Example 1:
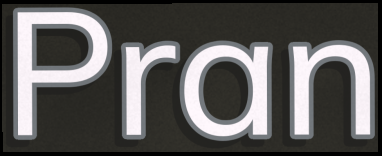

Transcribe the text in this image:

Pran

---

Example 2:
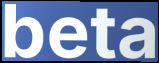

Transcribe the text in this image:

beta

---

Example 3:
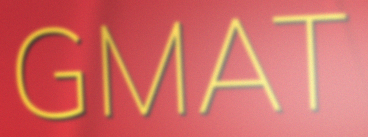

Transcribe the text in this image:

GMAT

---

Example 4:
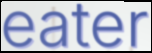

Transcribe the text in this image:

eater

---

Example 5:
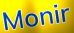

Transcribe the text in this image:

Monir